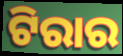
ଟିରାର